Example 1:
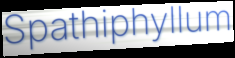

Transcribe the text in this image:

Spathiphyllum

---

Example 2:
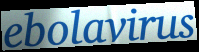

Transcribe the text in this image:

ebolavirus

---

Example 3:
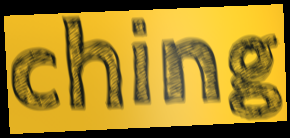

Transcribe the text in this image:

ching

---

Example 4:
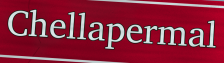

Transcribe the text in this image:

Chellapermal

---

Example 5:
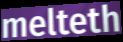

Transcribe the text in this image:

melteth